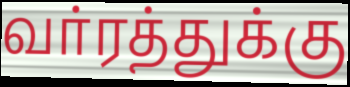
வர்ரத்துக்கு